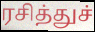
ரசித்துச்